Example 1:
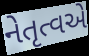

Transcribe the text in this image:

નેતૃત્વએ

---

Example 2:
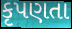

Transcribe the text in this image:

કૃપણતા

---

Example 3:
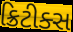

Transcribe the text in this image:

ક્રિટીક્સ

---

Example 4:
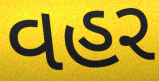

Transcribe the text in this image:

વહર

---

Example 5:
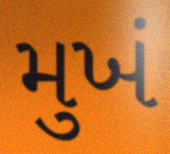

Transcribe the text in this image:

મુખં